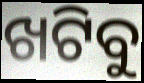
ଖଟିବୁ